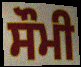
ਸੌਮੀ